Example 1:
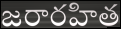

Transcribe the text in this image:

జరారహిత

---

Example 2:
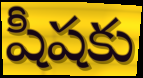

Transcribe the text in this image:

షీషకు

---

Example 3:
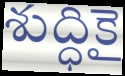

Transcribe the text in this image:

శుద్ధికై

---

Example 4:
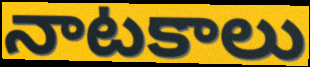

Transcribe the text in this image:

నాటకాలు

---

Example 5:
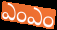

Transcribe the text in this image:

ఎంఎం